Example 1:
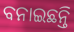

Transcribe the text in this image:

ବନାଇଛନ୍ତି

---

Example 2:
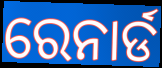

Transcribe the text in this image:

ରେନାର୍ଡ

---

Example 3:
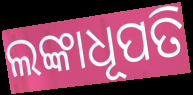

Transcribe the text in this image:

ଲଙ୍କାଧୂପତି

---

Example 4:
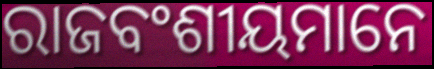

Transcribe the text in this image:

ରାଜବଂଶୀୟମାନେ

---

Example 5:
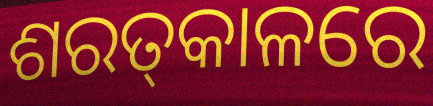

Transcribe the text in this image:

ଶରତ୍‌କାଳରେ